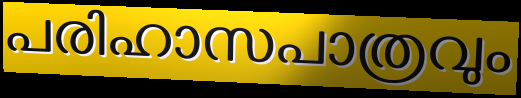
പരിഹാസപാത്രവും